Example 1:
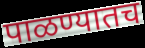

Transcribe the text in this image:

पाळण्यातच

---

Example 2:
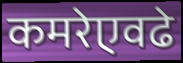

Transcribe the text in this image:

कमरेएवढे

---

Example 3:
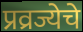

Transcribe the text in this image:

प्रव्रज्येचे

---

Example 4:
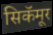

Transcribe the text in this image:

सिकॅमूर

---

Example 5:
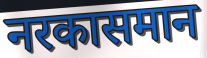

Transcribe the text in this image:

नरकासमान